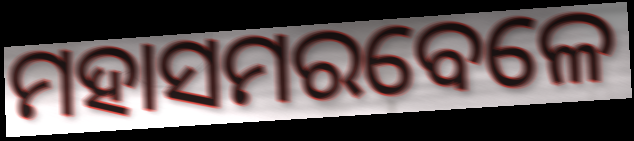
ମହାସମରବେଳେ